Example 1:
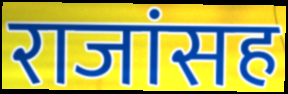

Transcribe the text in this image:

राजांसह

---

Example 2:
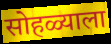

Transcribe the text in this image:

सोहळ्याला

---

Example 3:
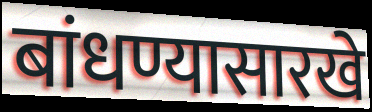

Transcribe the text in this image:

बांधण्यासारखे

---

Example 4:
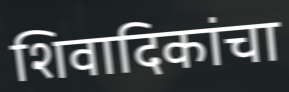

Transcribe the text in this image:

शिवादिकांचा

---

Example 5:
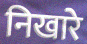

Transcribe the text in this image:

निखारे